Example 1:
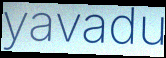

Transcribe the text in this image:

yavadu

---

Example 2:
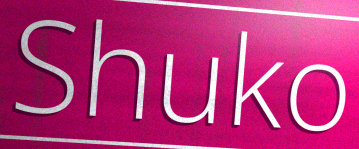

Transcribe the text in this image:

Shuko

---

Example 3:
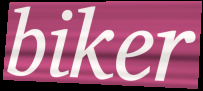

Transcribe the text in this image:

biker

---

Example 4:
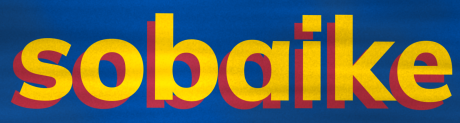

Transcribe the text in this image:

sobaike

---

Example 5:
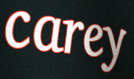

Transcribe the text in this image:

carey